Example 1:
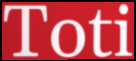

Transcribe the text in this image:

Toti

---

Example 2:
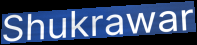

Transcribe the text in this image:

Shukrawar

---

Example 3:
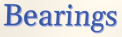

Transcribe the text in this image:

Bearings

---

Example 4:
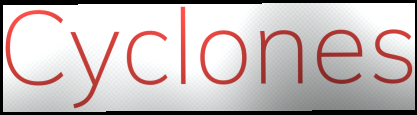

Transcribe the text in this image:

Cyclones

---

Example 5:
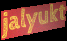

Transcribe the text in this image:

jalyukt